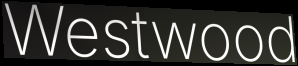
Westwood